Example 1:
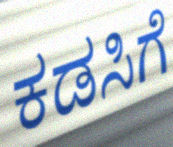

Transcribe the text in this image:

ಕಡಸಿಗೆ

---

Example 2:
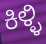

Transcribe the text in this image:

ಕಿಳ್ಳಿ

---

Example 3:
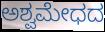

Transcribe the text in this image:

ಅಶ್ವಮೇಧದ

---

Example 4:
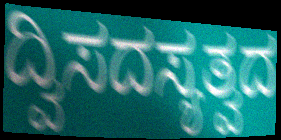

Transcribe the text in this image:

ದ್ವಿಸದಸ್ಯತ್ವದ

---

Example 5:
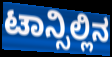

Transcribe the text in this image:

ಟಾನ್ಸಿಲ್ಲಿನ